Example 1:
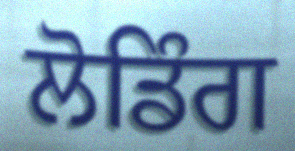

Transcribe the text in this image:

ਲੋਡਿੰਗ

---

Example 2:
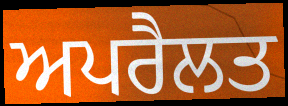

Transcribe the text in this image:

ਅਪਰੈਲਤ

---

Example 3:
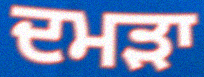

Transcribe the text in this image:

ਦਮੜਾ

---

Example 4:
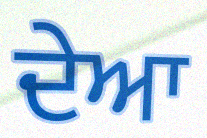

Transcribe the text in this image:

ਦੇਆ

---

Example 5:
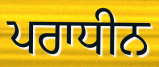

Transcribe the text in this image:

ਪਰਾਧੀਨ